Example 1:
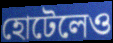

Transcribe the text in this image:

হোটেলেও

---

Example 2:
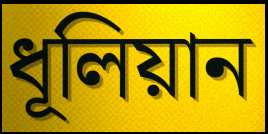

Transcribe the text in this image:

ধূলিয়ান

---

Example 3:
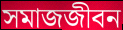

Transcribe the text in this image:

সমাজজীবন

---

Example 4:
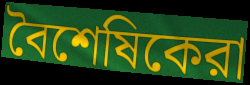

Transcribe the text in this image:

বৈশেষিকেরা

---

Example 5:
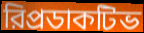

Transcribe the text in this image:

রিপ্রডাকটিভ